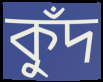
কুঁদ